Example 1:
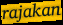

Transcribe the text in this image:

rajakan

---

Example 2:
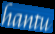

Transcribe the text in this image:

hantu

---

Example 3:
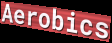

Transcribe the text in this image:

Aerobics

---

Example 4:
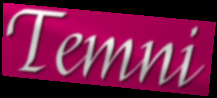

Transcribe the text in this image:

Temni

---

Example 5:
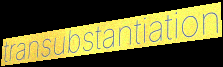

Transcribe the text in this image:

transubstantiation